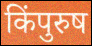
किंपुरुष